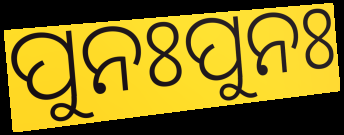
ପୁନଃପୁନଃ